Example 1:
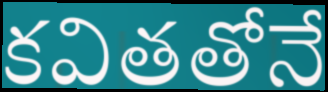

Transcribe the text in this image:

కవితతోనే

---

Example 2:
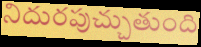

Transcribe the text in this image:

నిదురపుచ్చుతుంది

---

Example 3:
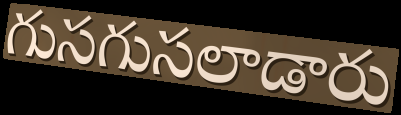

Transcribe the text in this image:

గుసగుసలాడారు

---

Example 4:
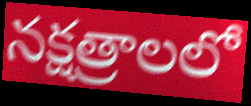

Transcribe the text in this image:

నక్షత్రాలలో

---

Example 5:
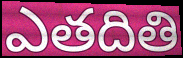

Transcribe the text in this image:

ఎతదితి